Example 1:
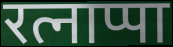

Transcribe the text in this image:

रत्नाप्पा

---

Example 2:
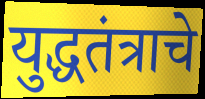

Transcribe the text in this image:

युद्धतंत्राचे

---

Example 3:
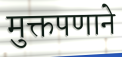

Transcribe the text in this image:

मुक्तपणाने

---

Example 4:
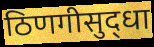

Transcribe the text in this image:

ठिणगीसुद्धा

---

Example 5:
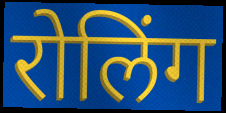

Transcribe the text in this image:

रोलिंग